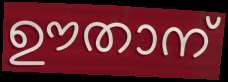
ഊതാന്